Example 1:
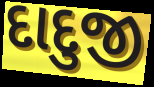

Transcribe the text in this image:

દાદુજી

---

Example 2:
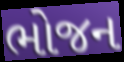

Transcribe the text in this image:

ભોજન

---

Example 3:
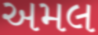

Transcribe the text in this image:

અમલ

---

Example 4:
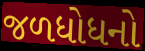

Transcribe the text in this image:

જળધોધનો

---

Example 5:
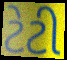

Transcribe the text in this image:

ટેટી